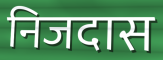
निजदास